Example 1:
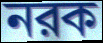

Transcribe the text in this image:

নরক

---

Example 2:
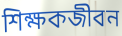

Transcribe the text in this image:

শিক্ষকজীবন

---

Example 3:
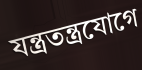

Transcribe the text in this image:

যন্ত্রতন্ত্রযোগে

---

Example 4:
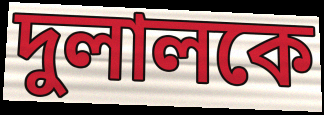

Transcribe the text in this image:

দুলালকে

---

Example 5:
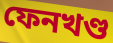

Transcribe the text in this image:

ফেনখণ্ড